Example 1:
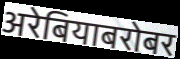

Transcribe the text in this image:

अरेबियाबरोबर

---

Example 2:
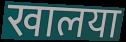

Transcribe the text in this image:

खालया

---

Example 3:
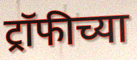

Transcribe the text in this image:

ट्रॉफीच्या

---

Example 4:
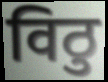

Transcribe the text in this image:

विठु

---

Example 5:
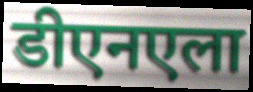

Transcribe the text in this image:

डीएनएला